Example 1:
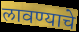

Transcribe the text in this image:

लावण्याचे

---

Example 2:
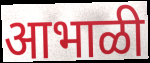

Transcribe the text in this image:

आभाळी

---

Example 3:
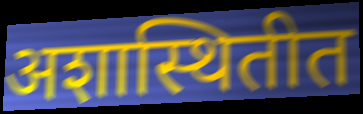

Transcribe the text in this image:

अशास्थितीत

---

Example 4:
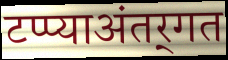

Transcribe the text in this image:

टप्प्याअंतर्गत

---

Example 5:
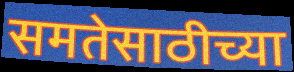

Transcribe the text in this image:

समतेसाठीच्या